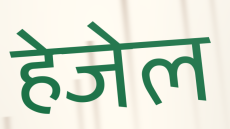
हेजेल